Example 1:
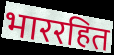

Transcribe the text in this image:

भाररहित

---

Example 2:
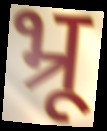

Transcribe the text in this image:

भ्रू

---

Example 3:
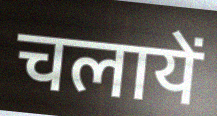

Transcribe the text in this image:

चलायें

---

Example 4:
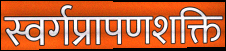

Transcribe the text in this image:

स्वर्गप्रापणशक्ति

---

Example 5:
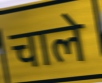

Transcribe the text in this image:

चाले